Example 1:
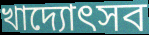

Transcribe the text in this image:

খাদ্যোৎসব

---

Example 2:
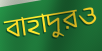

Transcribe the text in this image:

বাহাদুরও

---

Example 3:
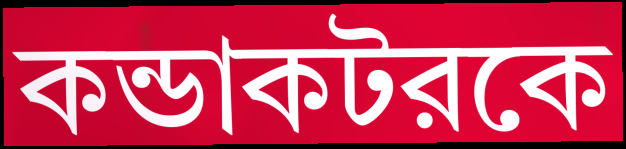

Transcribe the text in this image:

কন্ডাকটরকে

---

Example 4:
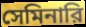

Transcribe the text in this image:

সেমিনারি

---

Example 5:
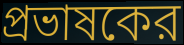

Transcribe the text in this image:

প্রভাষকের